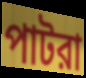
পাটরা